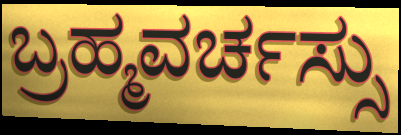
ಬ್ರಹ್ಮವರ್ಚಸ್ಸು